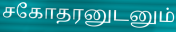
சகோதரனுடனும்